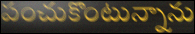
పంచుకొంటున్నాను